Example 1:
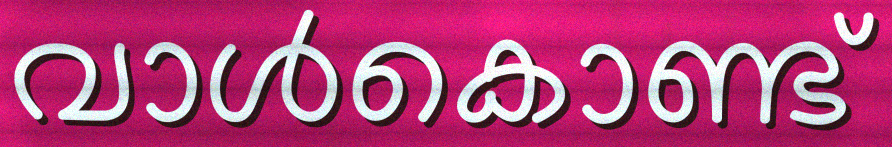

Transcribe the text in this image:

വാൾകൊണ്ട്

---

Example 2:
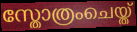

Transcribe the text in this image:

സ്തോത്രംചെയ്ത്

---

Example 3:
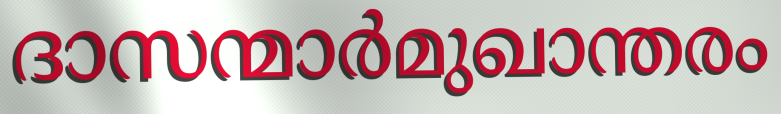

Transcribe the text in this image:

ദാസന്മാർമുഖാന്തരം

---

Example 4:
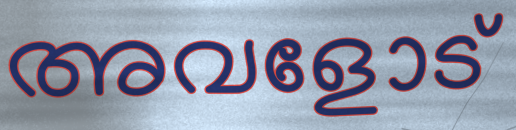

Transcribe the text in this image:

അവളോട്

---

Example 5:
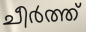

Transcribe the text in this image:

ചീർത്ത്